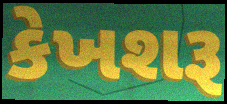
કેખશરૂ